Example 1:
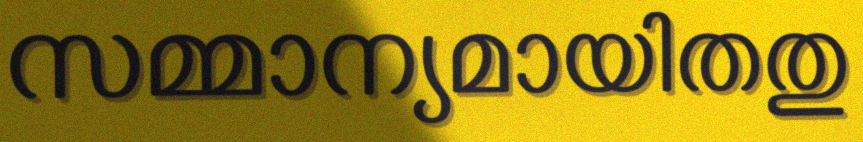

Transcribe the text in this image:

സമ്മാന്യമായിതതു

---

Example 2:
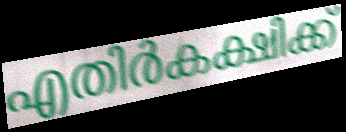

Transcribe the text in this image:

എതിർകക്ഷിക്ക്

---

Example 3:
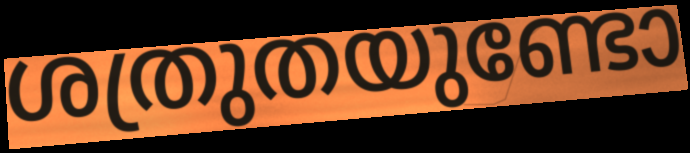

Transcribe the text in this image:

ശത്രുതയുണ്ടോ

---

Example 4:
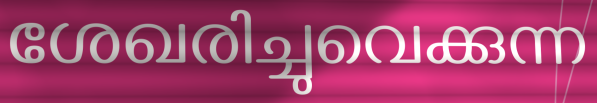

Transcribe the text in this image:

ശേഖരിച്ചുവെക്കുന്ന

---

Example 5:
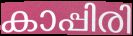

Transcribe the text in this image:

കാപ്പിരി